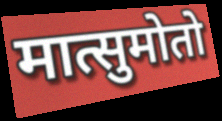
मात्सुमोतो